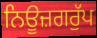
ਨਿਊਜ਼ਗਰੁੱਪ